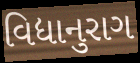
વિદ્યાનુરાગ